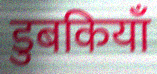
डुबकियाँ